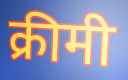
क्रीमी